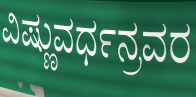
ವಿಷ್ಣುವರ್ಧನ್ರವರ